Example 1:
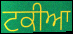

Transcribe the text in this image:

ਟਕੀਆ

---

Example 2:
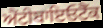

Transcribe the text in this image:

ਐਂਟੀਬਾਇਓਟੈੱਕ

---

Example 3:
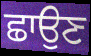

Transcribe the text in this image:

ਛਾਉਣ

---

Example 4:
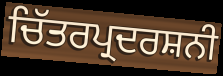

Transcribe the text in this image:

ਚਿੱਤਰਪ੍ਰਦਰਸ਼ਨੀ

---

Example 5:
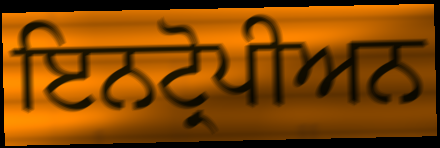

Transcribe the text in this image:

ਇਨਟ੍ਰੋਪੀਅਨ